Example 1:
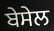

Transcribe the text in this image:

ਬੇਸੇਲ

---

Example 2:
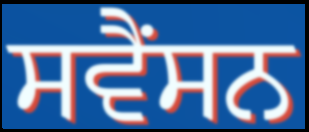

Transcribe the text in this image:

ਸਵੈਂਸਨ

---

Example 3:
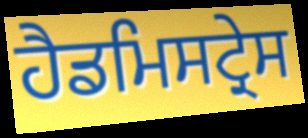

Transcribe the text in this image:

ਹੈਡਮਿਸਟ੍ਰੇਸ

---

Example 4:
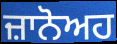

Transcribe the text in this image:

ਜ਼ਾਨੋਅਹ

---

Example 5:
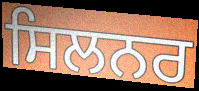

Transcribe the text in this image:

ਸਿਲਨਰ